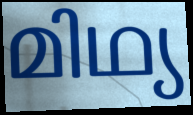
മിഥ്യ